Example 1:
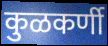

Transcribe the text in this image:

कुळकर्णी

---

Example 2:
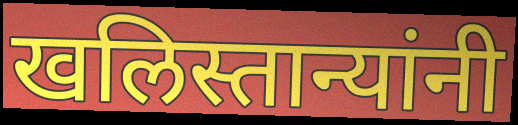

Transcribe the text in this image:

खलिस्तान्यांनी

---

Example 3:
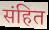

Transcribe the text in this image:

संहित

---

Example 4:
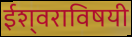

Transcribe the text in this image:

ईश्वराविषयी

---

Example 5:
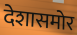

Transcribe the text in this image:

देशासमोर